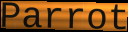
Parrot